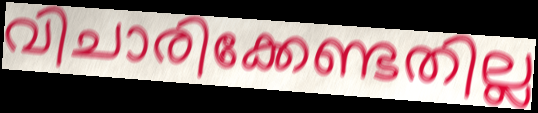
വിചാരിക്കേണ്ടതില്ല